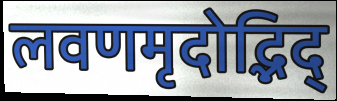
लवणमृदोद्भिद्